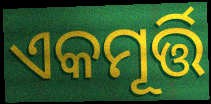
ଏକମୂର୍ତ୍ତି